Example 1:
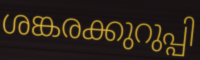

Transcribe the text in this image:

ശങ്കരക്കുറുപ്പി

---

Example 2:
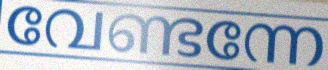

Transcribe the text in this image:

വേണ്ടന്നേ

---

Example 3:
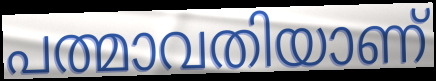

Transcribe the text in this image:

പത്മാവതിയാണ്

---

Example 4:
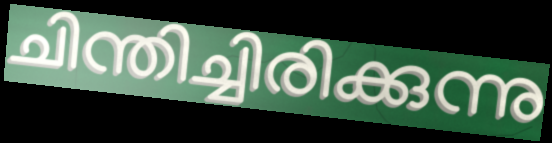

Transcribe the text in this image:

ചിന്തിച്ചിരിക്കുന്നു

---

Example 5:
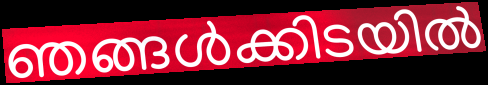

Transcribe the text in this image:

ഞങ്ങൾക്കിടയിൽ